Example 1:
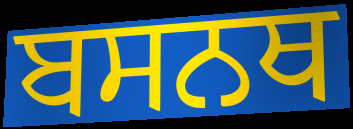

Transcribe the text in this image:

ਬਸਨਥ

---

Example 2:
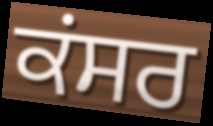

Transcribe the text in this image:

ਕਂਸਰ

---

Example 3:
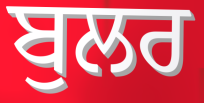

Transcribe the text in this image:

ਬੁਲਰ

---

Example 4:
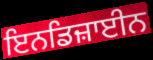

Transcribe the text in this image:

ਇਨਡਿਜ਼ਾਈਨ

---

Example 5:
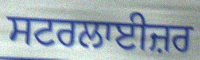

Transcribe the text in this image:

ਸਟਰਲਾਈਜ਼ਰ